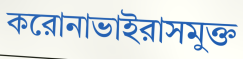
করোনাভাইরাসমুক্ত